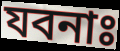
যবনাঃ